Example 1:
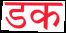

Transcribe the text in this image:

डक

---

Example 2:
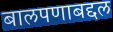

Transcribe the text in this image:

बालपणाबद्दल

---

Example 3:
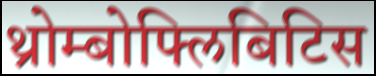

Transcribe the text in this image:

थ्रोम्बोफ्लिबिटिस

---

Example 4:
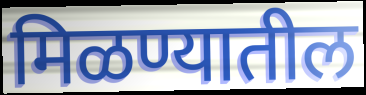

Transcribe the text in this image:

मिळण्यातील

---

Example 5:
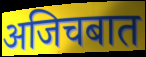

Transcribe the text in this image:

अजिचबात